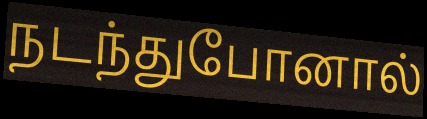
நடந்துபோனால்